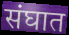
संघात